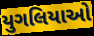
યુગલિયાઓ